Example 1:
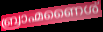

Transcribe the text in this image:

ബ്രാഹ്മണൈശ്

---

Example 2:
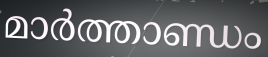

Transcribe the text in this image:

മാർത്താണ്ഡം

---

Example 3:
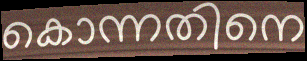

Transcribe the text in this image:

കൊന്നതിനെ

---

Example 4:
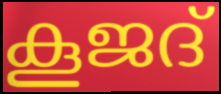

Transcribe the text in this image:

കൂജദ്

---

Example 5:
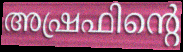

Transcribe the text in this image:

അഷ്രഫിന്റെ